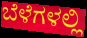
ಬೆಳೆಗಳಲ್ಲಿ